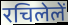
रचिलेलें